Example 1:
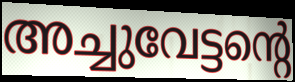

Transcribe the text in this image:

അച്ചുവേട്ടന്റെ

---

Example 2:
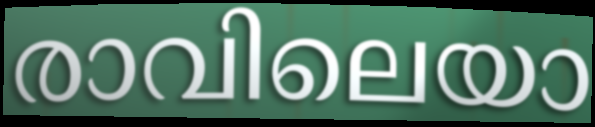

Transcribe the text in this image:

രാവിലെയാ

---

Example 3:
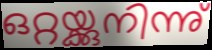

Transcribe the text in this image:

ഒറ്റയ്ക്കുനിന്നു്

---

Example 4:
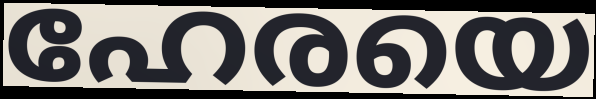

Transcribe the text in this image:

ഹേരയെ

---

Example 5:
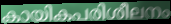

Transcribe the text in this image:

കായികപരിശീലനം